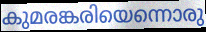
കുമരങ്കരിയെന്നൊരു